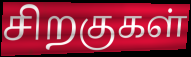
சிறகுகள்